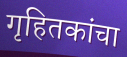
गृहितकांचा